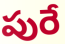
పురే